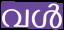
വൾ